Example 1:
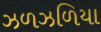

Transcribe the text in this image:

ઝળઝળિયા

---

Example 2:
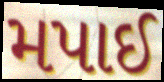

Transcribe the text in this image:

મપાઈ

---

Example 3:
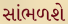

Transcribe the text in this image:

સાંભળશે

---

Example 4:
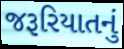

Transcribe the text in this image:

જરૂરિયાતનું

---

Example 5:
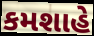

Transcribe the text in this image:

કમશાહે